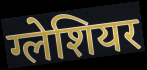
ग्लेशियर